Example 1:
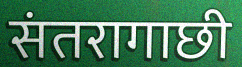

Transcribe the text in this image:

संतरागाछी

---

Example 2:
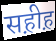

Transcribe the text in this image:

सह़ीह़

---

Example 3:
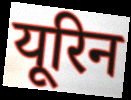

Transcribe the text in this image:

यूरिन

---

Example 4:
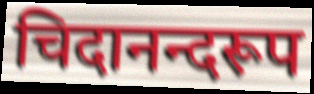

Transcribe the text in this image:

चिदानन्दरूप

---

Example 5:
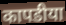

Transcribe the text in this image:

कापडीया